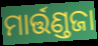
ମାର୍ତ୍ତଣ୍ଡଜା